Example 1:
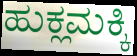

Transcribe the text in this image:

ಹುಕ್ಲಮಕ್ಕಿ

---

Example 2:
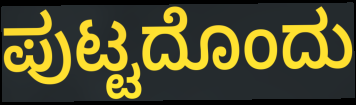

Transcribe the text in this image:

ಪುಟ್ಟದೊಂದು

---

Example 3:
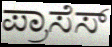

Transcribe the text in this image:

ಪ್ರಾಸೆಸ್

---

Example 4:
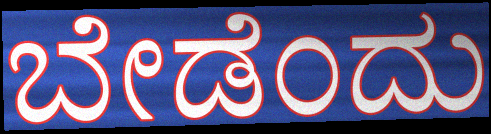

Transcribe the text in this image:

ಬೇಡೆಂದು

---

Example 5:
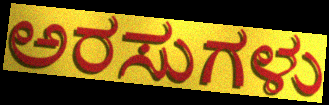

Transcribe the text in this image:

ಅರಸುಗಳು